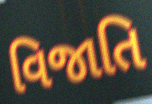
વિજાતિ